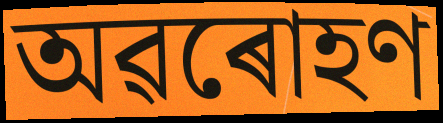
অৱৰোহণ